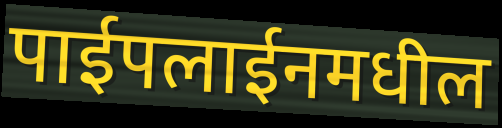
पाईपलाईनमधील